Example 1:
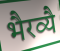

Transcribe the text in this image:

भैरव्यै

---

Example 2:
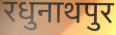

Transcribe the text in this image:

रधुनाथपुर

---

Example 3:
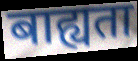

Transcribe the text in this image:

बाह्यता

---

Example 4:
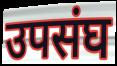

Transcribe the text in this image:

उपसंघ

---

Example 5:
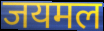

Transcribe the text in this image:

जयमल